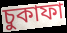
চুকাফা